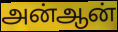
அன்ஆன்